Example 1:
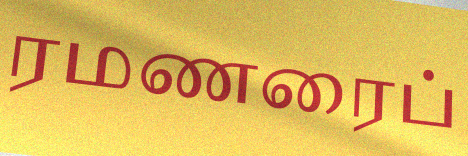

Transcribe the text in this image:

ரமணரைப்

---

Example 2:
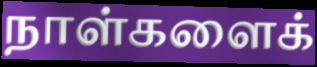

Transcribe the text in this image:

நாள்களைக்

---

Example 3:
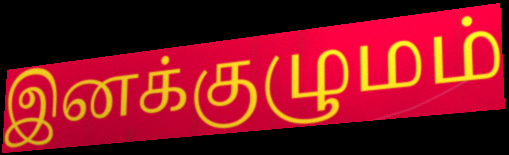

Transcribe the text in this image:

இனக்குழுமம்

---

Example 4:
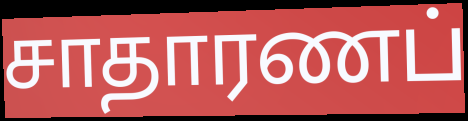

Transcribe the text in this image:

சாதாரணப்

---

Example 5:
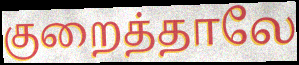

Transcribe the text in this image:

குறைத்தாலே